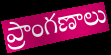
ప్రాంగణాలు